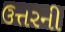
ઉત્તરની